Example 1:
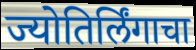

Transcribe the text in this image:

ज्योतिर्लिंगाचा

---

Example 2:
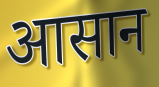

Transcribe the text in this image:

आसान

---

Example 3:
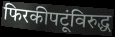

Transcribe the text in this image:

फिरकीपटूंविरुद्ध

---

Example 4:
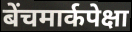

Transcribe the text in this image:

बेंचमार्कपेक्षा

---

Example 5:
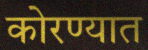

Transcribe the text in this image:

कोरण्यात